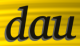
dau